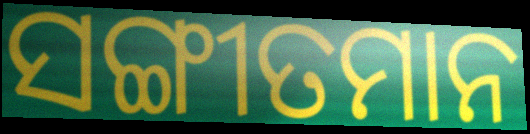
ସଙ୍ଗୀତମାନ